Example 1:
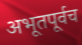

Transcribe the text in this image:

अभूतपूर्वच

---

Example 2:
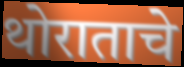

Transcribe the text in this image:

थोराताचे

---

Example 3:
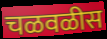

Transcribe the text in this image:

चळवळीस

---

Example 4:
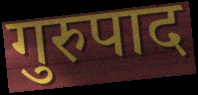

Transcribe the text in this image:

गुरुपाद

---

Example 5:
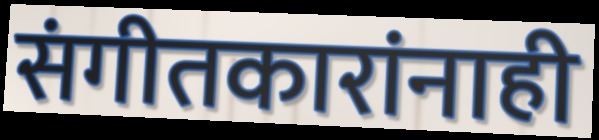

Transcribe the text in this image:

संगीतकारांनाही